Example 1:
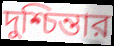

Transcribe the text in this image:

দুশ্চিন্তার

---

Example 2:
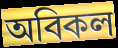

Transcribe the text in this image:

অবিকল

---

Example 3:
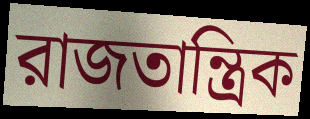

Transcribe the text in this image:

রাজতান্ত্রিক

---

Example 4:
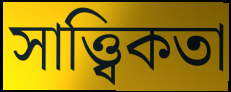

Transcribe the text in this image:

সাত্ত্বিকতা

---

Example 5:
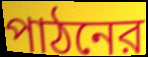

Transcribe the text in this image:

পাঠনের